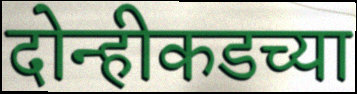
दोन्हीकडच्या